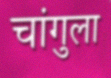
चांगुला